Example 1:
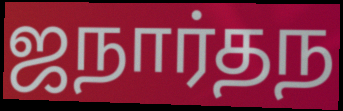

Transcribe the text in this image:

ஜநார்தந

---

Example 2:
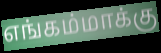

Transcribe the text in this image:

எங்கம்மாக்கு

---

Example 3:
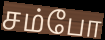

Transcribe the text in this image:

சம்போ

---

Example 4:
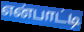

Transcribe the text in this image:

என்பாட்டி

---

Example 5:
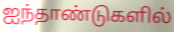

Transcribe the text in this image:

ஐந்தாண்டுகளில்